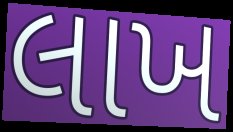
લાખ